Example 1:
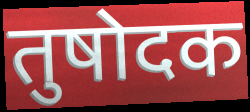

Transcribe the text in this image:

तुषोदक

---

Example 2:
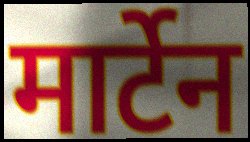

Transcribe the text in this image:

मार्टेन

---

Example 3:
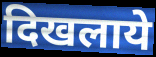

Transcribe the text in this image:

दिखलाये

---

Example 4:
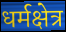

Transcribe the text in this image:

धर्मक्षेत्र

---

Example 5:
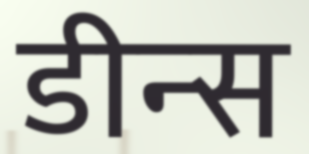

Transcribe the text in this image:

डीन्स